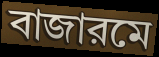
বাজারমে